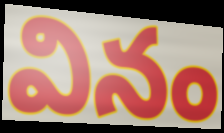
వినం